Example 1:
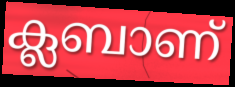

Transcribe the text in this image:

ക്ലബാണ്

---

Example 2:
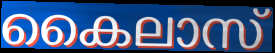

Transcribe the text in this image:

കൈലാസ്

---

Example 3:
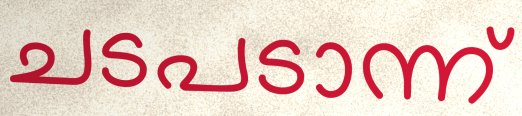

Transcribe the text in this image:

ചടപടാന്ന്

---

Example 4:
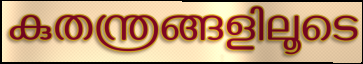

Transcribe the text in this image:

കുതന്ത്രങ്ങളിലൂടെ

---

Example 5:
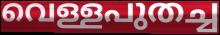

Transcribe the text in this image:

വെള്ളപുതച്ച